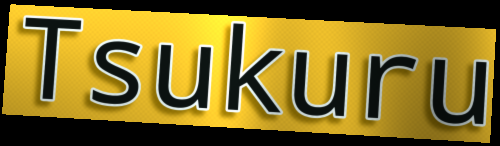
Tsukuru